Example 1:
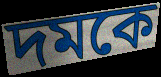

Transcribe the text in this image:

দমকে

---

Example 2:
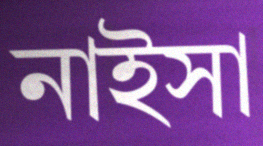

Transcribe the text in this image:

নাইসা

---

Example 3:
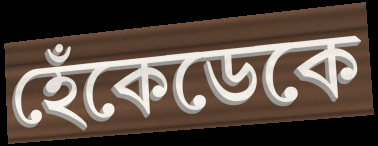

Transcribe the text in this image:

হেঁকেডেকে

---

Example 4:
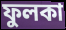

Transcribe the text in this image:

ফুলকা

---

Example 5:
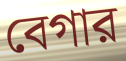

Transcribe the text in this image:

বেগার